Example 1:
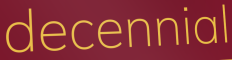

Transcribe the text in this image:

decennial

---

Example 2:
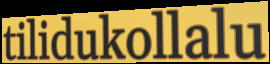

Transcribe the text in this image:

tilidukollalu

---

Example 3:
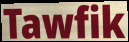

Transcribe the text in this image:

Tawfik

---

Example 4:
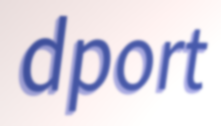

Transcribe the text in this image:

dport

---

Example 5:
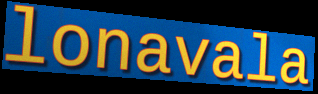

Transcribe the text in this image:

lonavala